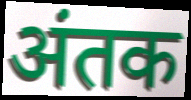
अंतक